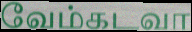
வேம்கடவா